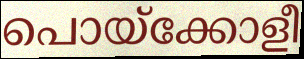
പൊയ്ക്കോളീ